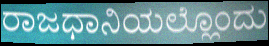
ರಾಜಧಾನಿಯಲ್ಲೊಂದು